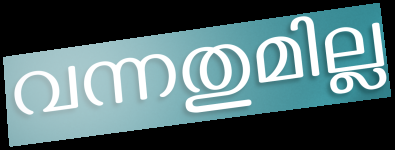
വന്നതുമില്ല